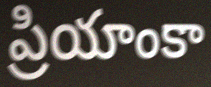
ప్రియాంకా